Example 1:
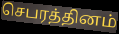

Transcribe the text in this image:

செபரத்தினம்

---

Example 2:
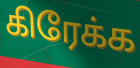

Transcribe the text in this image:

கிரேக்க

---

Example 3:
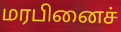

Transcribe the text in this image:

மரபினைச்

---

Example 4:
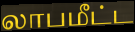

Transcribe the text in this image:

லாபமீட்ட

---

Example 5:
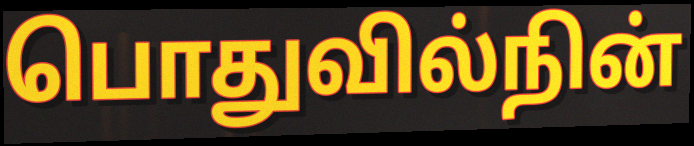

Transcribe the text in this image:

பொதுவில்நின்